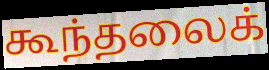
கூந்தலைக்